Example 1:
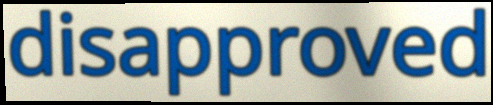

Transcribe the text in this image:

disapproved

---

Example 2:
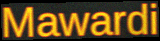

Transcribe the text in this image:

Mawardi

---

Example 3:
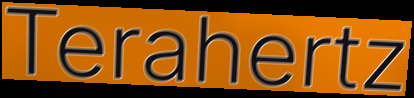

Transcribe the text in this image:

Terahertz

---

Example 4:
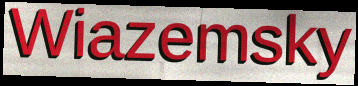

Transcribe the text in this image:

Wiazemsky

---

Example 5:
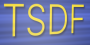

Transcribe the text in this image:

TSDF